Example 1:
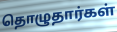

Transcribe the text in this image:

தொழுதார்கள்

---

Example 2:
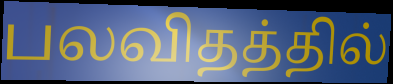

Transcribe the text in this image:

பலவிதத்தில்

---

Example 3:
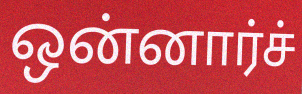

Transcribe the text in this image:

ஒன்னார்ச்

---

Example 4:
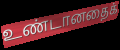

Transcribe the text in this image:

உண்டானதைக்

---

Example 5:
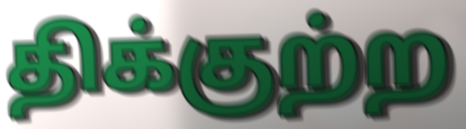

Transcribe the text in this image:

திக்குற்ற